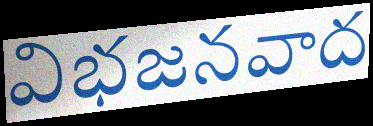
విభజనవాద